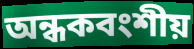
অন্ধকবংশীয়